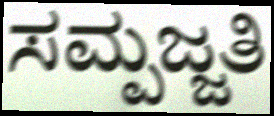
ಸಮ್ಪಜ್ಜತಿ